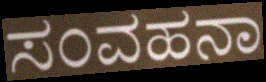
ಸಂವಹನಾ